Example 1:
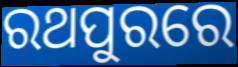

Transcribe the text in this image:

ରଥପୁରରେ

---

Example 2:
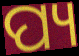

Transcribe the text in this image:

ପ୍ୟ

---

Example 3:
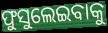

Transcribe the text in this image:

ଫୁସୁଲେଇବାକୁ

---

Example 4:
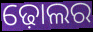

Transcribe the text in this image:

ଢ଼ୋଲର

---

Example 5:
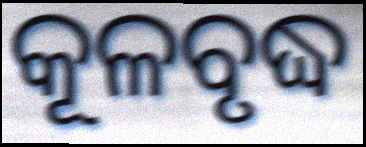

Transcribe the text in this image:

କୂଳବୃଦ୍ଧ